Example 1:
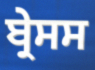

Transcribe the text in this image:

ਬ੍ਰੇਸਸ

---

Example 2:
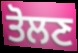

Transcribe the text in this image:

ਤੋਲਣ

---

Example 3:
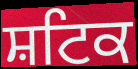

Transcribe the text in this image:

ਸ਼ਟਿਕ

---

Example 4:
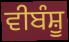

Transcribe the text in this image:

ਵੀਬੰਸ਼ੂ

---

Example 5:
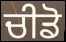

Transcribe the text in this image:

ਚੀਡੋ